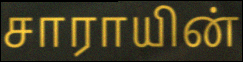
சாராயின்